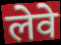
लेवे